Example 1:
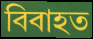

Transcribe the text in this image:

বিবাহত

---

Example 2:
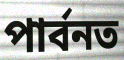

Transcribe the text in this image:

পাৰ্বনত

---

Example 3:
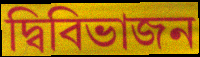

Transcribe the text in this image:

দ্বিবিভাজন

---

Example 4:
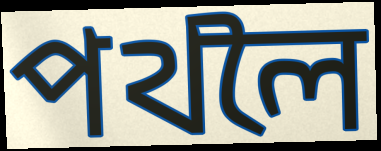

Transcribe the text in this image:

পথলৈ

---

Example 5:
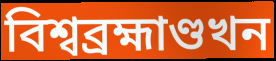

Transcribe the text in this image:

বিশ্বব্ৰহ্মাণ্ডখন